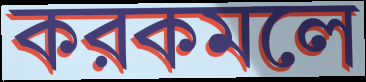
করকমলে